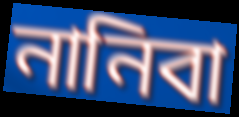
নানিবা